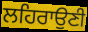
ਲਹਿਰਾਉਣੀ